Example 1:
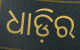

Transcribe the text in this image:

ଧାଡ଼ିର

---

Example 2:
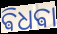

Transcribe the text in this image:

ଵିଧଵା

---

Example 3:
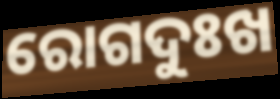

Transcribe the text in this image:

ରୋଗଦୁଃଖ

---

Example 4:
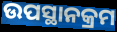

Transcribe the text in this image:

ଉପସ୍ଥାନକ୍ରମ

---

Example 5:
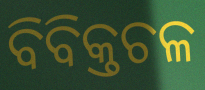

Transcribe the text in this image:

ବିବିକ୍ତଚଳ